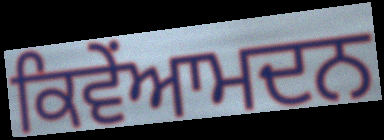
ਕਿਵੇਂਆਮਦਨ